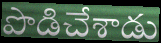
పొడిచేశాడు